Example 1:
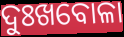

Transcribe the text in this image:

ଦୁଃଖବୋଳା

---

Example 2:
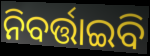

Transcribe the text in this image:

ନିବର୍ତ୍ତାଇବି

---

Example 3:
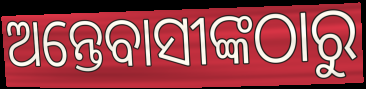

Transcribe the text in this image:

ଅନ୍ତେବାସୀଙ୍କଠାରୁ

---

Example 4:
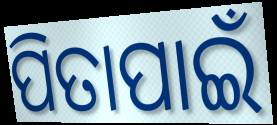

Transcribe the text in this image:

ପିତାପାଇଁ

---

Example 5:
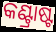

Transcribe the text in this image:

କଣ୍ଟ୍ରାଷ୍ଟ